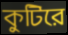
কুটিরে